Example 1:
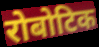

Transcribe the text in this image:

रोबोटिक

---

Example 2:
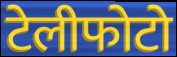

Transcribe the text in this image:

टेलीफोटो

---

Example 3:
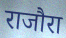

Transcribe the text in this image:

राजौरा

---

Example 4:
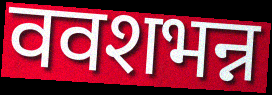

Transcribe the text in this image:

ववशभन्न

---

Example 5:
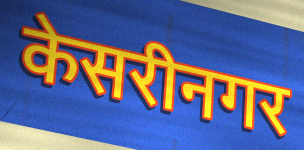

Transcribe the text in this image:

केसरीनगर